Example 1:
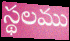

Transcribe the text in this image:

స్థలము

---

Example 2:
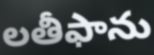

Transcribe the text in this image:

లతీఫాను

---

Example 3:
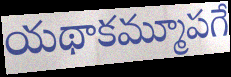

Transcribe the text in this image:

యథాకమ్మూపగే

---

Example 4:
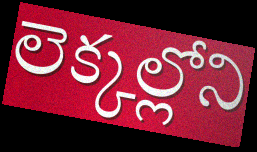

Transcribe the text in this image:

లెక్కల్లోని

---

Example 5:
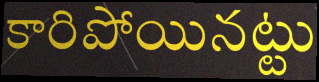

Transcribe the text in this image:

కారిపోయినట్టు